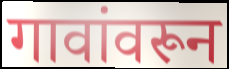
गावांवरून